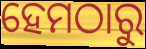
ହେମଠାରୁ